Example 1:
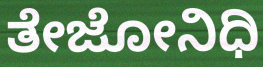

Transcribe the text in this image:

ತೇಜೋನಿಧಿ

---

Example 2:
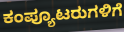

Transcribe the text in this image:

ಕಂಪ್ಯೂಟರುಗಳಿಗೆ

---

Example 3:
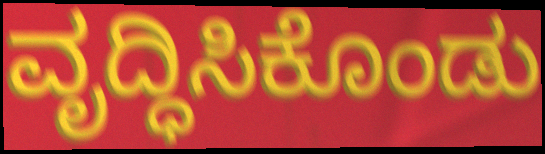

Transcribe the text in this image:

ವೃದ್ಧಿಸಿಕೊಂಡು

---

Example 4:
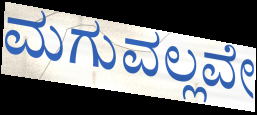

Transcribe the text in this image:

ಮಗುವಲ್ಲವೇ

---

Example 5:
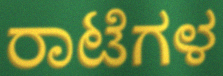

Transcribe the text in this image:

ರಾಟೆಗಳ